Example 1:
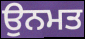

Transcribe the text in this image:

ਉਨਮਤ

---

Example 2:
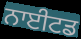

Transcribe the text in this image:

ਨਾਈਟਡ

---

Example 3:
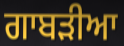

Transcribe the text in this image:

ਗਾਬੜੀਆ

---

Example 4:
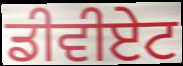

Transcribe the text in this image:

ਡੀਵੀਏਟ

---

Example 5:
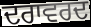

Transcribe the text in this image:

ਦਰਾਵਰਦ